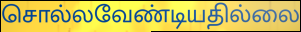
சொல்லவேண்டியதில்லை